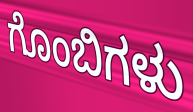
ಗೊಂಬಿಗಳು